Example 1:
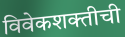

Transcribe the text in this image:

विवेकशक्तीची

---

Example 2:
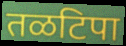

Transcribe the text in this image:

तळटिपा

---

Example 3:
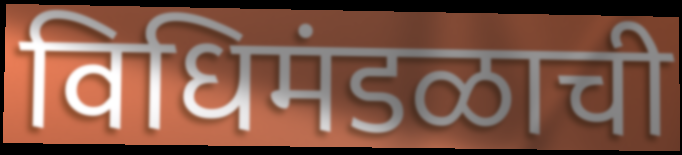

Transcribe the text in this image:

विधिमंडळाची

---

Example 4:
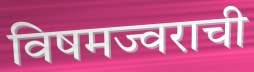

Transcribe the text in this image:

विषमज्वराची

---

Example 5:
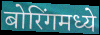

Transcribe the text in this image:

बोरिंगमध्ये